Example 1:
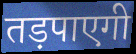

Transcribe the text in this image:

तड़पाएगी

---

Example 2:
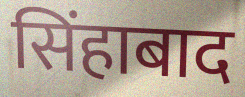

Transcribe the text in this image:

सिंहाबाद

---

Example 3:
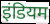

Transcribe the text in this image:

इंडियम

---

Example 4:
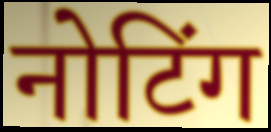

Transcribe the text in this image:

नोटिंग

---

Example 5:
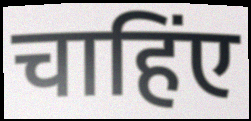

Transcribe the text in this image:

चाहिंए